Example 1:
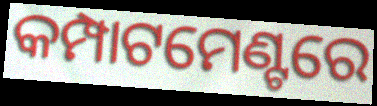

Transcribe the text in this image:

କମ୍ପାଟମେଣ୍ଟରେ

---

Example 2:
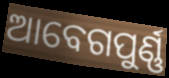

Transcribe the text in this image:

ଆବେଗପୁର୍ଣ୍ଣ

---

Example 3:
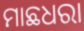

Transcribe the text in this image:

ମାଛଧରା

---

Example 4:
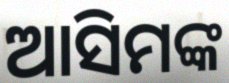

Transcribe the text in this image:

ଆସିମଙ୍କ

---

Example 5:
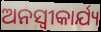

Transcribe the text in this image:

ଅନସ୍ୱୀକାର୍ଯ୍ୟ